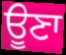
ਊਣਾ